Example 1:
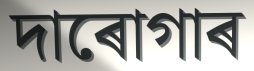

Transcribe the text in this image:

দাৰোগাৰ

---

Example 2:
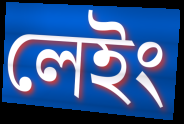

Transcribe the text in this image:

লেইং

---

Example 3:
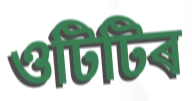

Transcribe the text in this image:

ওটিটিৰ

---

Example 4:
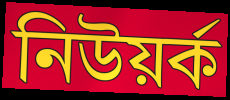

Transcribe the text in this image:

নিউয়ৰ্ক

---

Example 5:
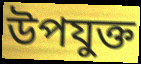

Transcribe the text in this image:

উপযুক্ত